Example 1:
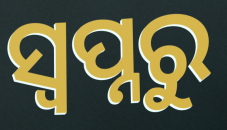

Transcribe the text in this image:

ସ୍ୱପ୍ନରୁ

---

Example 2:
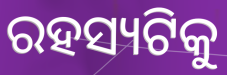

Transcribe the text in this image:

ରହସ୍ୟଟିକୁ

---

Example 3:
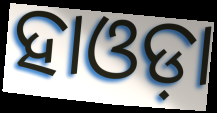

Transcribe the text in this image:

ହାଓଡ଼ା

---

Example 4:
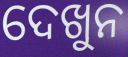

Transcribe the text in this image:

ଦେଖୁନ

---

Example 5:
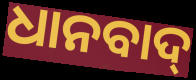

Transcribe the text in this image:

ଧାନବାଦ୍